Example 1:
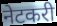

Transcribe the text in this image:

नेटकरी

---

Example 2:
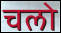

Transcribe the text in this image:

चलो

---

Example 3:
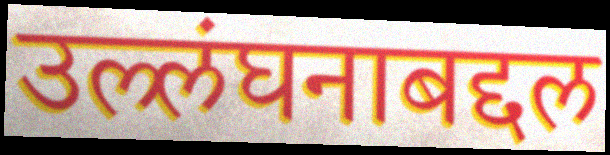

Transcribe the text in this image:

उल्लंघनाबद्दल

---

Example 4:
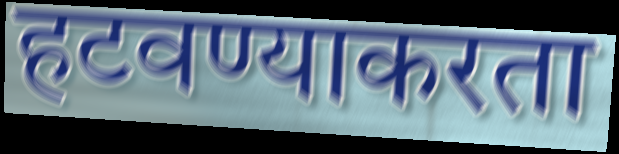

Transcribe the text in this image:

हटवण्याकरता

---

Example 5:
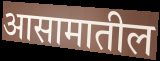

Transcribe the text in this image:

आसामातील